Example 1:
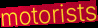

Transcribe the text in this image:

motorists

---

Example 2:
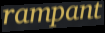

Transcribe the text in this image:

rampant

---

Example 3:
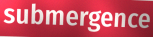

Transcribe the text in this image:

submergence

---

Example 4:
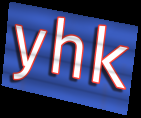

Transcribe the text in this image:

yhk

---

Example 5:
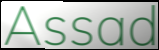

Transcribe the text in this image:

Assad